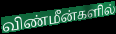
விண்மீன்களில்